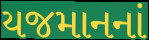
યજમાનનાં